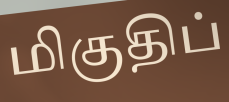
மிகுதிப்